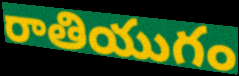
రాతియుగం